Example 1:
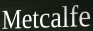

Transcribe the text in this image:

Metcalfe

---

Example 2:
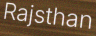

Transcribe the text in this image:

Rajsthan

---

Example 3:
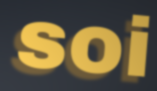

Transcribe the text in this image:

soi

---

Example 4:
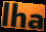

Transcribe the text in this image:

lha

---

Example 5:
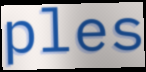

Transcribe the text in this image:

ples